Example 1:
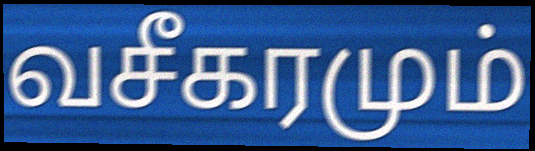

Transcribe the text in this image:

வசீகரமும்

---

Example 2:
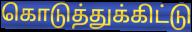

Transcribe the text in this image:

கொடுத்துக்கிட்டு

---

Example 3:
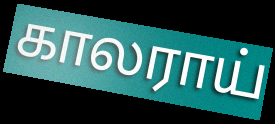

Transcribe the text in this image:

காலராய்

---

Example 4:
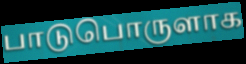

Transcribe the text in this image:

பாடுபொருளாக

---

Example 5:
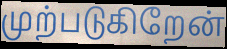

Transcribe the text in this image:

முற்படுகிறேன்